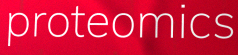
proteomics